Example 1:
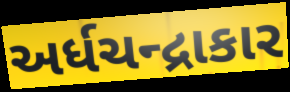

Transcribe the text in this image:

અર્ધચન્દ્રાકાર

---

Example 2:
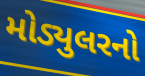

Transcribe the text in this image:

મોડ્યુલરનો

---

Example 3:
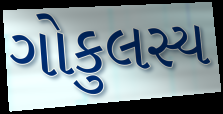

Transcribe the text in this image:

ગોકુલસ્ય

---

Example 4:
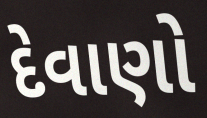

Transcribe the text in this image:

દેવાણો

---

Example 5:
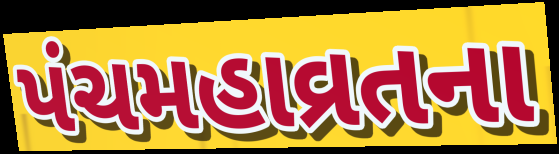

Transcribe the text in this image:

પંચમહાવ્રતના